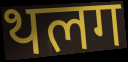
थलग